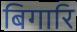
बिगारि